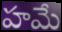
హమే